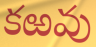
కఱవు